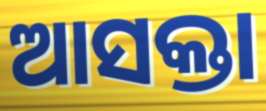
ଆସକ୍ତା